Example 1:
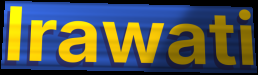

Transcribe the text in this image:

Irawati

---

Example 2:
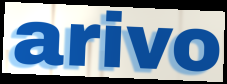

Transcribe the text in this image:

arivo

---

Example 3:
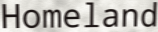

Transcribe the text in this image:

Homeland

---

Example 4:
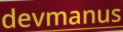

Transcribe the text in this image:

devmanus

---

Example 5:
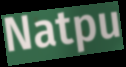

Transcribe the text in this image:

Natpu